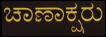
ಚಾಣಾಕ್ಷರು